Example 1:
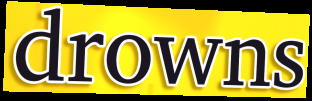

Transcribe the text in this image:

drowns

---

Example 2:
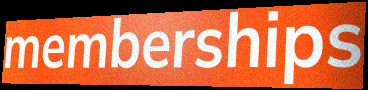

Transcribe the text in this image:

memberships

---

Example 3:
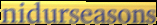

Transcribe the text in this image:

nidurseasons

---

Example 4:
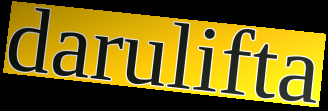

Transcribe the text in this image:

darulifta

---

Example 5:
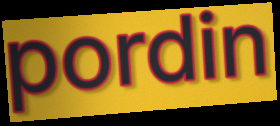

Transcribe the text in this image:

pordin